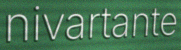
nivartante